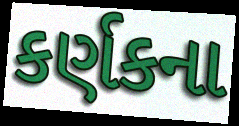
કર્ણકના